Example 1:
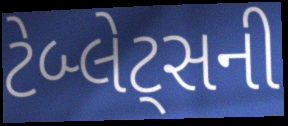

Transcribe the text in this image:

ટેબ્લેટ્સની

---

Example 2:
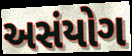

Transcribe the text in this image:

અસંયોગ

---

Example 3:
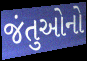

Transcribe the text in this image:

જંતુઓનો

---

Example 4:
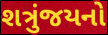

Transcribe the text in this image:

શત્રુંજયનો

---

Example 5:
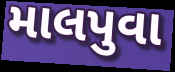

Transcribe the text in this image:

માલપુવા